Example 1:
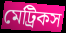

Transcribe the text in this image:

মেট্রিকস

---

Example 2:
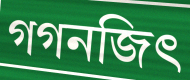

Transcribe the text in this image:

গগনজিৎ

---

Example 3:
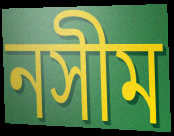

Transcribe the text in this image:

নসীম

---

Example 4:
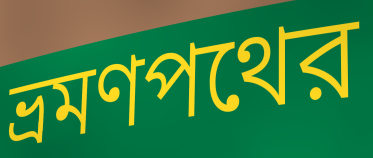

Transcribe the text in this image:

ভ্রমণপথের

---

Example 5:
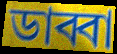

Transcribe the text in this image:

ডাব্বা